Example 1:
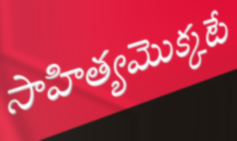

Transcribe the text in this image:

సాహిత్యమొక్కటే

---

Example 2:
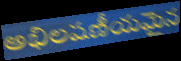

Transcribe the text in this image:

అభిలషణీయమైన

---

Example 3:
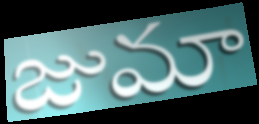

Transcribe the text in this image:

జుమా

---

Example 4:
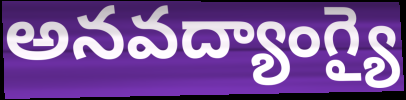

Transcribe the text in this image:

అనవద్యాంగ్యై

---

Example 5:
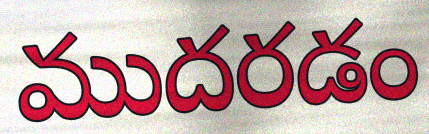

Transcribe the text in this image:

ముదరడం